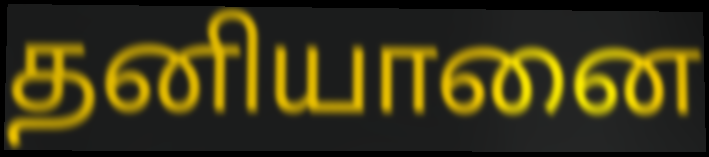
தனியானை